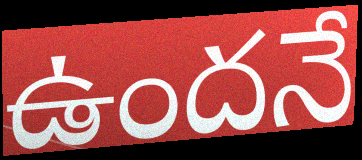
ఉందనే